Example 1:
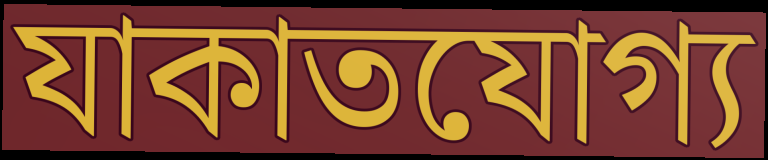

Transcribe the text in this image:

যাকাতযোগ্য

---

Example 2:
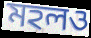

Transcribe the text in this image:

মহলও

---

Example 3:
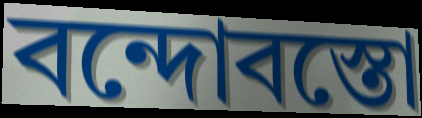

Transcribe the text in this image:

বন্দোবস্তো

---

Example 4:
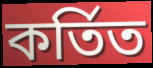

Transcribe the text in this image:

কর্তিত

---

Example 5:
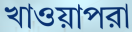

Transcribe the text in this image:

খাওয়াপরা